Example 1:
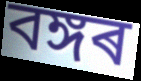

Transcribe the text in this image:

বঙ্গৰ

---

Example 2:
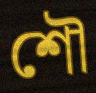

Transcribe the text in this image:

শৌ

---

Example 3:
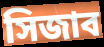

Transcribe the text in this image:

সিজাব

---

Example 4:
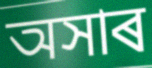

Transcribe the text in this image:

অসাৰ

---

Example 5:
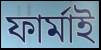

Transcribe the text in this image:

ফাৰ্মাই